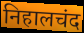
निहालचंद